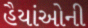
હૈયાંઓની